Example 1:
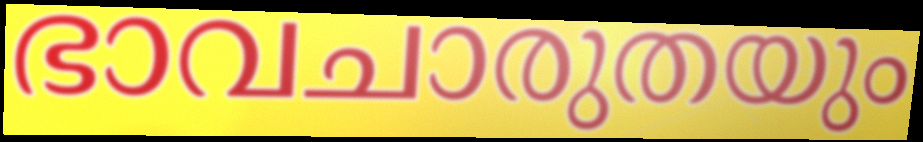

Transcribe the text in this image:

ഭാവചാരുതയും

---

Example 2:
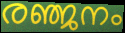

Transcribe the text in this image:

രഞ്ജനം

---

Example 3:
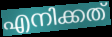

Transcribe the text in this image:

എനിക്കത്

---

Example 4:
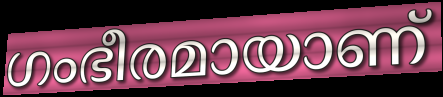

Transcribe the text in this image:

ഗംഭീരമായാണ്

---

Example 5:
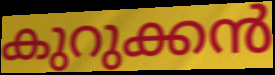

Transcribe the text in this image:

കുറുക്കൻ